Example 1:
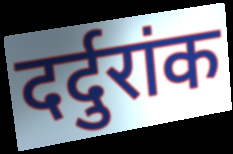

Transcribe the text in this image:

दर्दुरांक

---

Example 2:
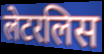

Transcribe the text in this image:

लेटरलिस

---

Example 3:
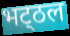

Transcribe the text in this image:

भट्‌ठल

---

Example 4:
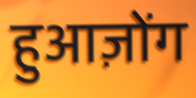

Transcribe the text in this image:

हुआज़ोंग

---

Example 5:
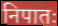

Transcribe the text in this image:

निपातः